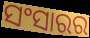
ସଂସାରର